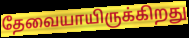
தேவையாயிருக்கிறது